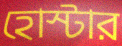
হোস্টার